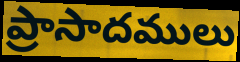
ప్రాసాదములు